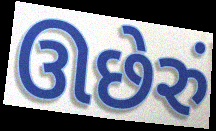
ઊછેરું